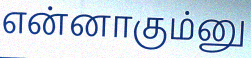
என்னாகும்னு